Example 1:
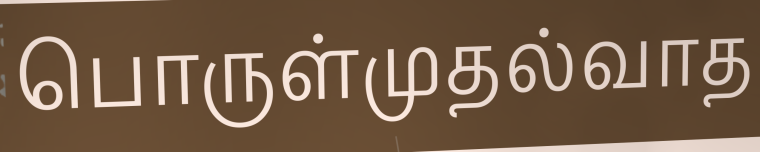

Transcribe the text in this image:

பொருள்முதல்வாத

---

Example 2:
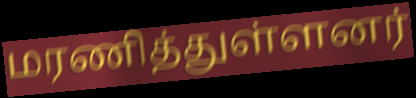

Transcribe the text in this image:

மரணித்துள்ளனர்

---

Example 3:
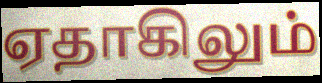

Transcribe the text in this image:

ஏதாகிலும்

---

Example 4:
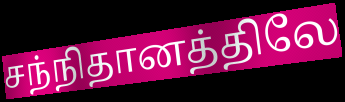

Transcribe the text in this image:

சந்நிதானத்திலே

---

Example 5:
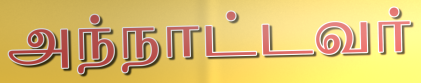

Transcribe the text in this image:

அந்நாட்டவர்